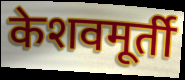
केशवमूर्ती